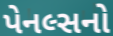
પેનલ્સનો